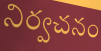
నిర్వచనం